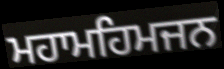
ਮਹਾਮਹਿਮਜਨ